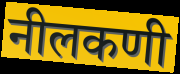
नीलकणी